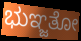
ಭುಞ್ಜತೋ